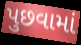
પુછવામાં